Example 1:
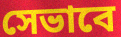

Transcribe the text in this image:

সেভাবে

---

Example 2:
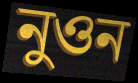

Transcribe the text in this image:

নুওন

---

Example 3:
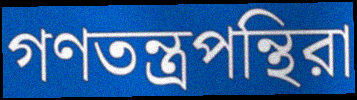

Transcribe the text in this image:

গণতন্ত্রপন্থিরা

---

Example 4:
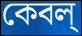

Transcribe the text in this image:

কেবল্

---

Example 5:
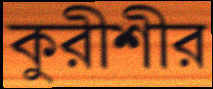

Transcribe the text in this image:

কুরীশীর